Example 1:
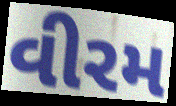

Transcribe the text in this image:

વીરમ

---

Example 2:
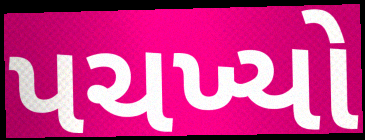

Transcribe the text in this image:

પચખ્યો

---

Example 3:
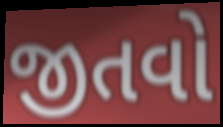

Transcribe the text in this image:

જીતવો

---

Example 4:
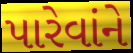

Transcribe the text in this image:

પારેવાંને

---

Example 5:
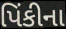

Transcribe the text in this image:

પિંકીના